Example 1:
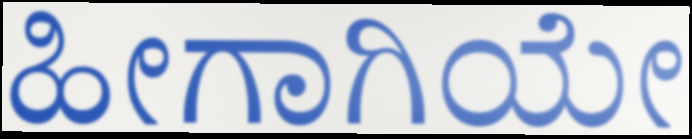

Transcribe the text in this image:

ಹೀಗಾಗಿಯೇ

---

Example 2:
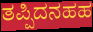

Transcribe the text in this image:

ತಪ್ಪಿದನಹಹ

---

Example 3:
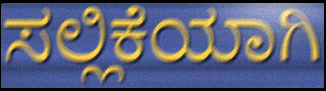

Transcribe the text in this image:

ಸಲ್ಲಿಕೆಯಾಗಿ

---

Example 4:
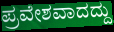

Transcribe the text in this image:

ಪ್ರವೇಶವಾದದ್ದು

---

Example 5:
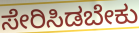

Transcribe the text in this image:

ಸೇರಿಸಿಡಬೇಕು